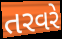
તરવરે